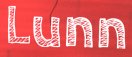
Lunn